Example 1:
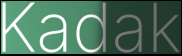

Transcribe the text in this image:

Kadak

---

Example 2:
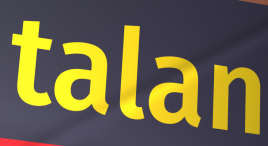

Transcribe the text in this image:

talan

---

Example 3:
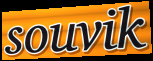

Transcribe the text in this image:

souvik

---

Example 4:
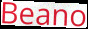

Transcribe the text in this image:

Beano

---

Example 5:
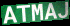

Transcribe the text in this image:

ATMAJ